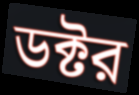
ডক্টর